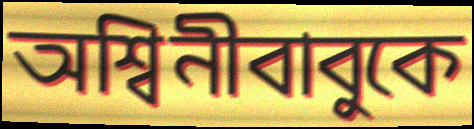
অশ্বিনীবাবুকে